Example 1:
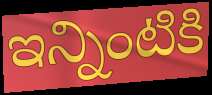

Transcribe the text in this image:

ఇన్నింటికి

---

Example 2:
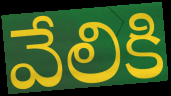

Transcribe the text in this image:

వేలికి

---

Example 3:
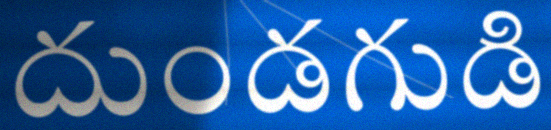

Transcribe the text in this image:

దుండగుడి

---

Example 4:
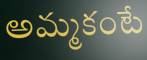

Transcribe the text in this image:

అమ్మకంటే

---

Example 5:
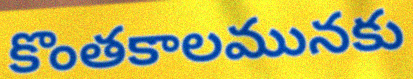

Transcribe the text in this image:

కొంతకాలమునకు